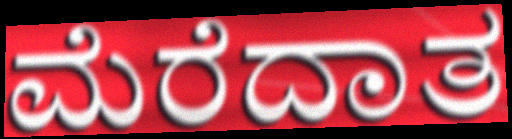
ಮೆರೆದಾತ